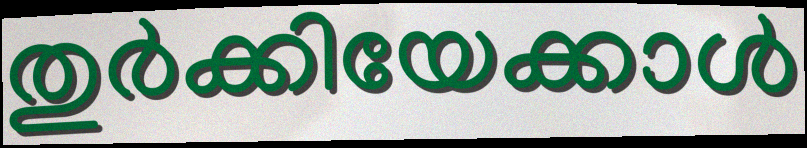
തുർക്കിയേക്കാൾ